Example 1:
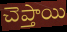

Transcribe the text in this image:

చెప్తాయి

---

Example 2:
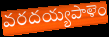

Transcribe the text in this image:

వరదయ్యపాళెం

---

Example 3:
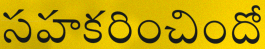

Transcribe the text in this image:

సహకరించిందో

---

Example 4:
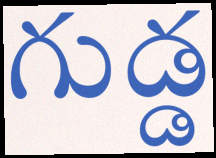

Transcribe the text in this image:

గుడ్డ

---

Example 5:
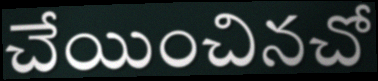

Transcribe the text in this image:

చేయించినచో